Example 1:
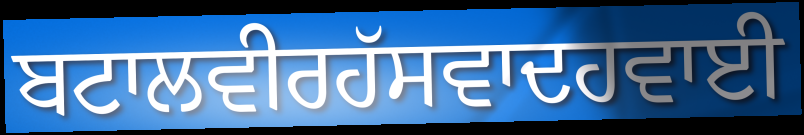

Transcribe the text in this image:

ਬਟਾਲਵੀਰਹੱਸਵਾਦਹਵਾਈ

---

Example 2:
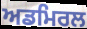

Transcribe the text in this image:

ਅਡਮਿਰਲ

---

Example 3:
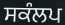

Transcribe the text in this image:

ਸਕੰਲਪ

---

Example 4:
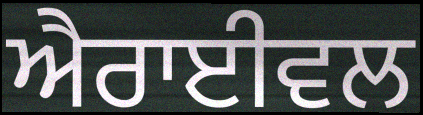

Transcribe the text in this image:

ਐਰਾਈਵਲ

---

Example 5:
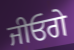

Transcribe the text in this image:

ਜੀਓਗੇ